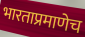
भारताप्रमाणेच